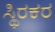
ಸ್ಥಿರಕರ